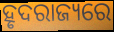
ହୃଦରାଜ୍ୟରେ